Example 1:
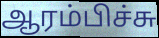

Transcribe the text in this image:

ஆரம்பிச்சு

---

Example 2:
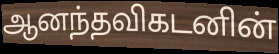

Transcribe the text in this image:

ஆனந்தவிகடனின்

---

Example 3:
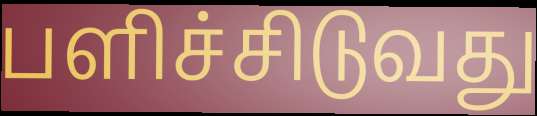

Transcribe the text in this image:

பளிச்சிடுவது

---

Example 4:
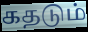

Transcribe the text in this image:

கதடும்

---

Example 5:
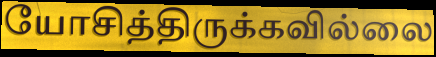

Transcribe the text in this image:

யோசித்திருக்கவில்லை